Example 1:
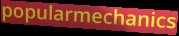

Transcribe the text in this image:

popularmechanics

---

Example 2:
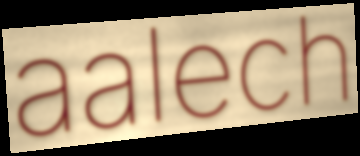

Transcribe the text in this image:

aalech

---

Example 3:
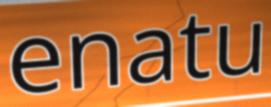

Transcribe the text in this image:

enatu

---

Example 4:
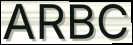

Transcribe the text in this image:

ARBC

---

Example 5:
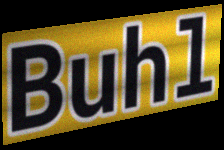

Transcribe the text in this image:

Buhl